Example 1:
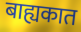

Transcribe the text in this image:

बाह्यकात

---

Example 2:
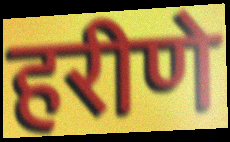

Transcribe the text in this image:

हरीणे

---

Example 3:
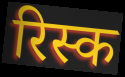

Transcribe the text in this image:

रिस्क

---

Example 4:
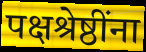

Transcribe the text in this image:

पक्षश्रेष्ठींना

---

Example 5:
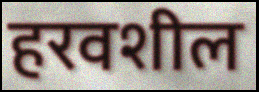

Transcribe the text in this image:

हरवशील